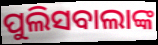
ପୁଲିସବାଲାଙ୍କ